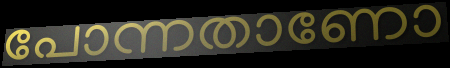
പോന്നതാണോ